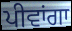
ਪੀਵਾਂਗਾ